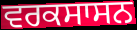
ਵਰਕਸਾਸਨ